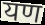
यण